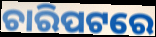
ଚାରିପଟରେ